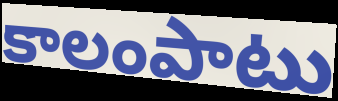
కాలంపాటు